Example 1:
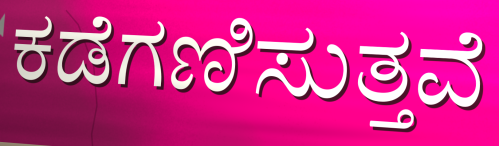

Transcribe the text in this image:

ಕಡೆಗಣಿಸುತ್ತವೆ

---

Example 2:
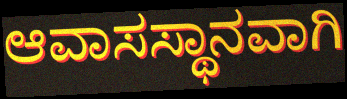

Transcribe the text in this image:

ಆವಾಸಸ್ಥಾನವಾಗಿ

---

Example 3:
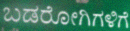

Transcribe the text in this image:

ಬಡರೋಗಿಗಳಿಗೆ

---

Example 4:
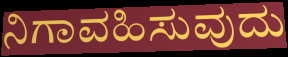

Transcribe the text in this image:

ನಿಗಾವಹಿಸುವುದು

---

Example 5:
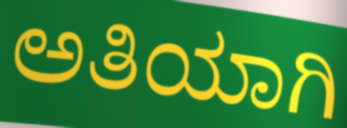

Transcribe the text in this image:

ಅತಿಯಾಗಿ